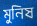
মুনিষ